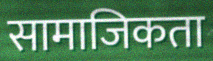
सामाजिकता